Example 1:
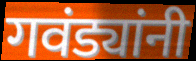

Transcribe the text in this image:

गवंड्यांनी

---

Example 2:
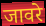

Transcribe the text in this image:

जावरे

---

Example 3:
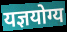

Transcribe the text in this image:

यज्ञयोग्य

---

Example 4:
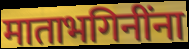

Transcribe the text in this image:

माताभगिनींना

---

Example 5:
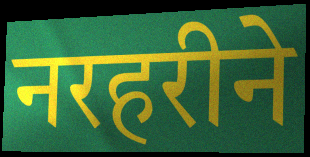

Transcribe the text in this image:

नरहरीने